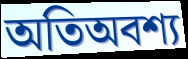
অতিঅবশ্য